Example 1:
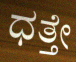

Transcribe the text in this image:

ಧತ್ತೇ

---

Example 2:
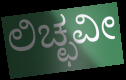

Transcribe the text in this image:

ಲಿಚ್ಛವೀ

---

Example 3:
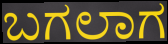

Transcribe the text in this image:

ಬಗಲಾಗ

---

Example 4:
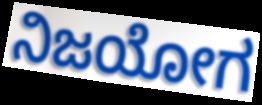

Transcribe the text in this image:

ನಿಜಯೋಗ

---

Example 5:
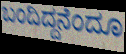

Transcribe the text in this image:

ಬಂದಿದ್ದನೆಂದೂ